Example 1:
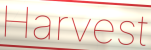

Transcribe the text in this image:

Harvest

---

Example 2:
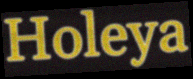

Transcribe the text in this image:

Holeya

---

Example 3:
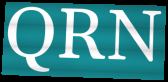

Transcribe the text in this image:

QRN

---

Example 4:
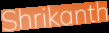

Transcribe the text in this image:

Shrikanth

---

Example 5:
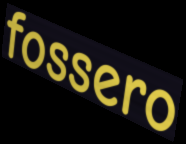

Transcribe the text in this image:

fossero